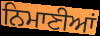
ਨਿਮਾਣੀਆਂ